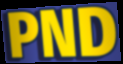
PND